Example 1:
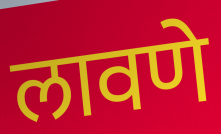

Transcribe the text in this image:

लावणे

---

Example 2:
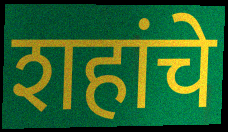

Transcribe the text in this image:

शहांचे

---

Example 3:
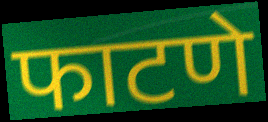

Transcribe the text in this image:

फाटणे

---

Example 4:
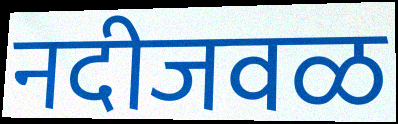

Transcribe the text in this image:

नदीजवळ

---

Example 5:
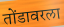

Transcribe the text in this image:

तोंडावरला